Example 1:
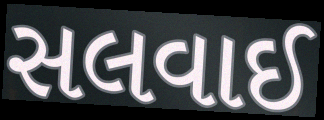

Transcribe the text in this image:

સલવાઈ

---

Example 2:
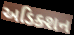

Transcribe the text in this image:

અડિક્શન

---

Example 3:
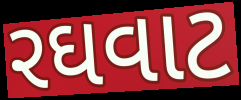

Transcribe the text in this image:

રઘવાટ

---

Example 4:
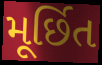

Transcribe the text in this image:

મૂર્છિત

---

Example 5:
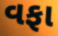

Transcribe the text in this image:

વફા